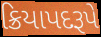
ક્રિયાપદરૂપે